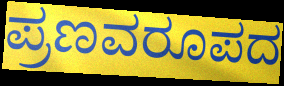
ಪ್ರಣವರೂಪದ